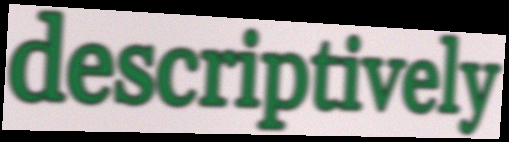
descriptively